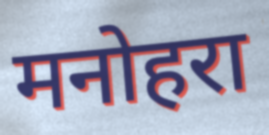
मनोहरा